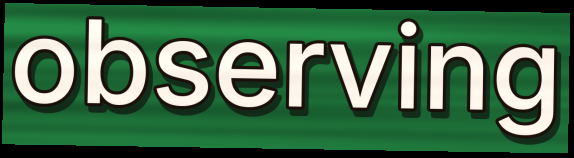
observing